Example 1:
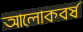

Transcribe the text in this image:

আলোকবৰ্ষ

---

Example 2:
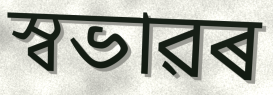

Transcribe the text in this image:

স্বভাৱৰ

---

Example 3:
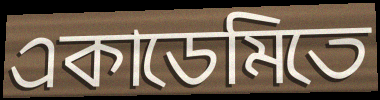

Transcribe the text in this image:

একাডেমিতে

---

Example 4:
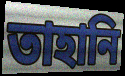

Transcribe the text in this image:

তাহানি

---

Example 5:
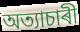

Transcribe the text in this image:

অত্যাচাৰী